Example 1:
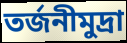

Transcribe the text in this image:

তর্জনীমুদ্রা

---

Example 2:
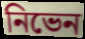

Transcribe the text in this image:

নিভেন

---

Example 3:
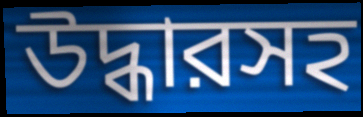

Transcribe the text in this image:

উদ্ধারসহ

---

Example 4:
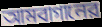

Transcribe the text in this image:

আমবাগানের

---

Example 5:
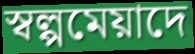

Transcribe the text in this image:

স্বল্পমেয়াদে